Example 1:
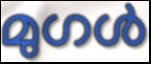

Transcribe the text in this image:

മുഗൾ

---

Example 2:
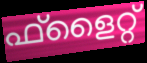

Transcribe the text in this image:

ഫ്ളൈറ്റ്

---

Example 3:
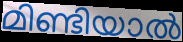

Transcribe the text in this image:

മിണ്ടിയാൽ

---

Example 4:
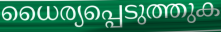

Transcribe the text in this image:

ധൈര്യപ്പെടുത്തുക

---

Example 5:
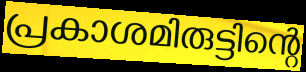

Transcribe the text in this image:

പ്രകാശമിരുട്ടിന്റെ